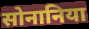
सोनानिया